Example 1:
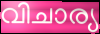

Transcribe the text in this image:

വിചാര്യ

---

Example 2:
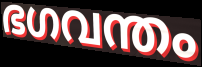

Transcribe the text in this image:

ഭഗവന്തം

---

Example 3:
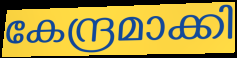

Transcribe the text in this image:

കേന്ദ്രമാക്കി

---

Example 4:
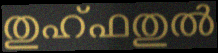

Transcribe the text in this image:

തുഹ്ഫതുൽ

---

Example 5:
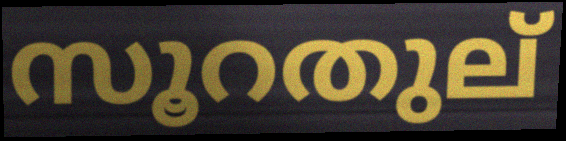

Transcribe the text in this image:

സൂറതുല്